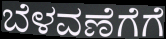
ಬೆಳವಣೆಗೆಗೆ